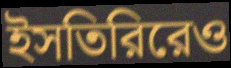
ইসতিরিরেও